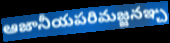
ఆజానీయపరిమజ్జనఞ్చ